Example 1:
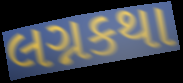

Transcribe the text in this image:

લગ્નકથા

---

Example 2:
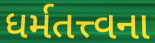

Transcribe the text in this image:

ધર્મતત્ત્વના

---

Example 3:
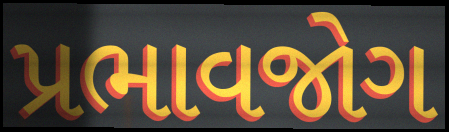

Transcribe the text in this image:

પ્રભાવજોગ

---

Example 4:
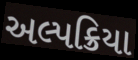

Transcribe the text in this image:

અલ્પક્રિયા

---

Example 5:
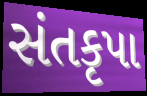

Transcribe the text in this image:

સંતકૃપા